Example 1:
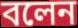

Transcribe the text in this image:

বলেন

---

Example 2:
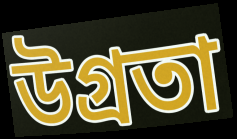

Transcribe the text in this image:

উগ্ৰতা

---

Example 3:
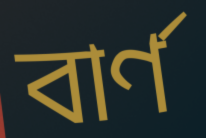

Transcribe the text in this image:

বাৰ্ণ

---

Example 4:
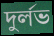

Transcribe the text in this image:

দুৰ্লভ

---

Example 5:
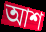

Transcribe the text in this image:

আশ